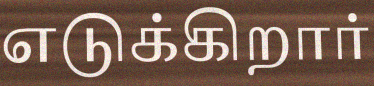
எடுக்கிறார்